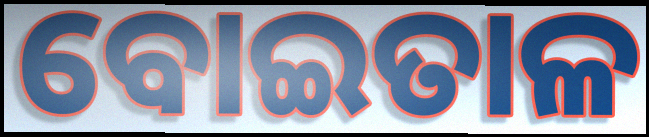
ବୋଇତାଳ